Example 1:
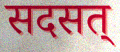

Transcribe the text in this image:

सदसत्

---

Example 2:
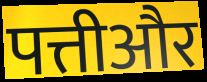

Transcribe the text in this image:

पत्तीऔर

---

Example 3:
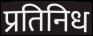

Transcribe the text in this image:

प्रतिनिध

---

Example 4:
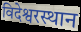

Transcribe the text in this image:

विदेश्वरस्थान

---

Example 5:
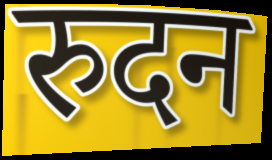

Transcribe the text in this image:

रुदन